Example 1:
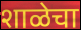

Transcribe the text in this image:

शाळेचा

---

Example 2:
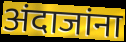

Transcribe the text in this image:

अंदाजांना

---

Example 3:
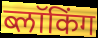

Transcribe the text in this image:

ब्लॉकिंग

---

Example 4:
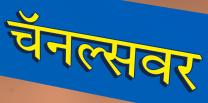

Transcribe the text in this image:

चॅनल्सवर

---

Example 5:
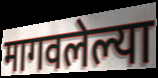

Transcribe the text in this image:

मागवलेल्या